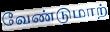
வேண்டுமாற்